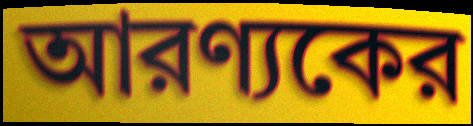
আরণ্যকের